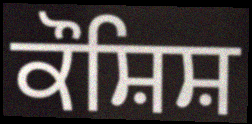
ਕੌਸ਼ਿਸ਼